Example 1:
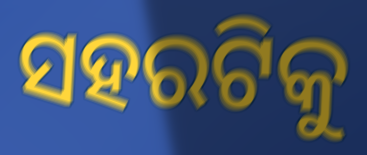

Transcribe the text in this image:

ସହରଟିକୁ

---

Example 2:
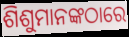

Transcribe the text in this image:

ଶିଶୁମାନଙ୍କଠାରେ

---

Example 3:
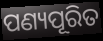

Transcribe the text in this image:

ପଣ୍ୟପୂରିତ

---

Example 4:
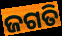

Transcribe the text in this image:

ଜଗତି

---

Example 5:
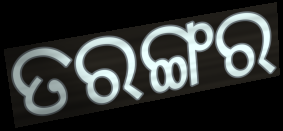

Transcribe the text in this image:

ତରଙ୍ଗର